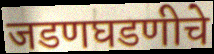
जडणघडणीचे